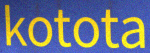
kotota